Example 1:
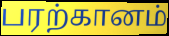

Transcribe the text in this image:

பரற்கானம்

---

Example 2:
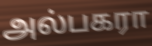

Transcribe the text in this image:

அல்பகரா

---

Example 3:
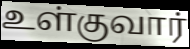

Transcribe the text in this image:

உள்குவார்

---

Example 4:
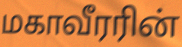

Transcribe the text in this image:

மகாவீரரின்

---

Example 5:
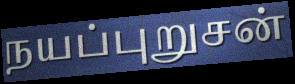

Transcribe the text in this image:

நயப்புறுசன்